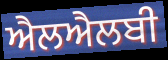
ਐਲਐਲਬੀ